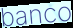
banco